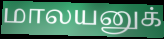
மாலயனுக்